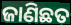
ଜାଣିଛତ